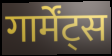
गार्मेंट्स